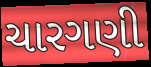
ચારગણી